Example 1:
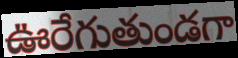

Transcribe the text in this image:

ఊరేగుతుండగా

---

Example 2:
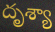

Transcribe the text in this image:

దృశ్యా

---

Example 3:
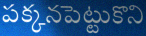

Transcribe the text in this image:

పక్కనపెట్టుకొని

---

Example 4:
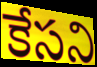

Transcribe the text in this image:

కేసని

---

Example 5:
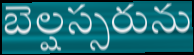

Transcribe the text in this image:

బెల్షస్సరును